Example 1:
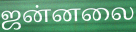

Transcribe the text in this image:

ஜன்னலை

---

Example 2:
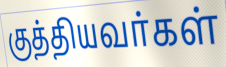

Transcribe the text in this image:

குத்தியவர்கள்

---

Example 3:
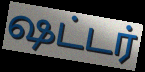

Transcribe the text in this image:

ஷட்டர்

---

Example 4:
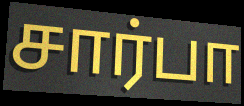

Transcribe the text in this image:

சார்பா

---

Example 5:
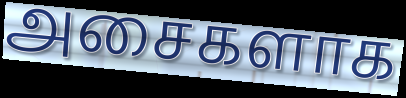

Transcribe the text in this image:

அசைகளாக